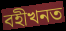
বহীখনত